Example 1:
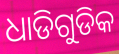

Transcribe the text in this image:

ଧାଡିଗୁଡିକ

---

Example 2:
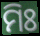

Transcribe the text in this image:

ମିଃ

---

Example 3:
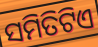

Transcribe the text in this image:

ସମିତିଟିଏ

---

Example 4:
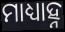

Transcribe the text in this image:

ମାଧ୍ୟାହ୍ନ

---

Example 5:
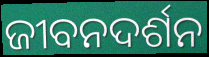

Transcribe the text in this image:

ଜୀବନଦର୍ଶନ